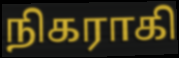
நிகராகி